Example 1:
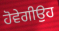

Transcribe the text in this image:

ਹੋਵੇਗੀਉਹ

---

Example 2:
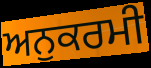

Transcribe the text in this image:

ਅਨੁਕਰਮੀ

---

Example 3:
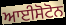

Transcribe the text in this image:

ਆਈਸੋਟੋਨ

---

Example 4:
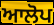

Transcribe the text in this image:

ਆਲੋਪ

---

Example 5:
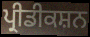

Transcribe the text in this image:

ਪ੍ਰੀਡੀਕਸ਼ਨ